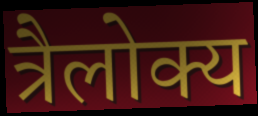
त्रैलोक्य